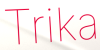
Trika